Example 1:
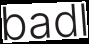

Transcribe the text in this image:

badl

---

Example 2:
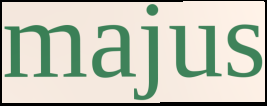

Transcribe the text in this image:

majus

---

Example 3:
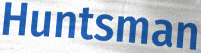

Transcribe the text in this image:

Huntsman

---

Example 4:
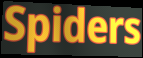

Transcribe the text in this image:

Spiders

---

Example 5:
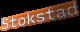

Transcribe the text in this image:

Stokstad